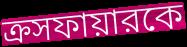
ক্রসফায়ারকে